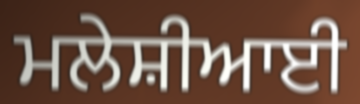
ਮਲੇਸ਼ੀਆਈ